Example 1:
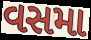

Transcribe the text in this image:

વસમા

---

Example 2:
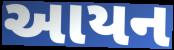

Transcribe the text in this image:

આયન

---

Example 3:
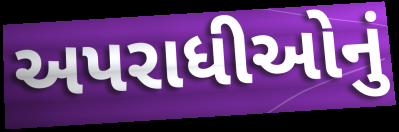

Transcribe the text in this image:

અપરાધીઓનું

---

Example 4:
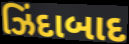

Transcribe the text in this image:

ઝિંદાબાદ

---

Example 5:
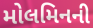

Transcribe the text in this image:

મોલમિનની